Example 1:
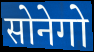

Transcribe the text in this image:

सोनेगो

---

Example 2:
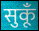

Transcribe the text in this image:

सुकूँ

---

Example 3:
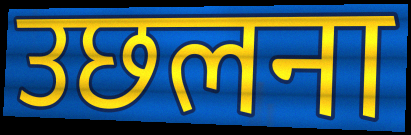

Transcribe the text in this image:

उछलना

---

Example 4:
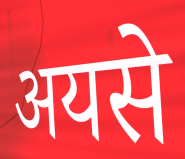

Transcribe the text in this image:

अयसे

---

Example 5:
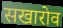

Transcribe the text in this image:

सखारोव